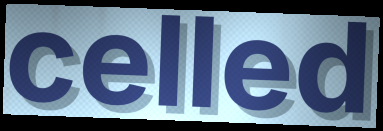
celled